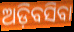
ଅଡ଼ିବସିବା